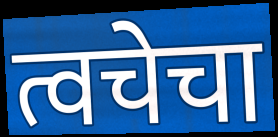
त्वचेचा